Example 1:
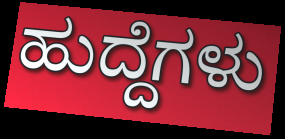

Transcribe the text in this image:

ಹುದ್ದೆಗಳು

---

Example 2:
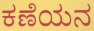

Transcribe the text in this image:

ಕಣೆಯನ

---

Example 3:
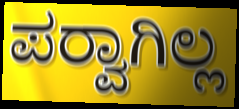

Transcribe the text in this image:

ಪರ‍್ವಾಗಿಲ್ಲ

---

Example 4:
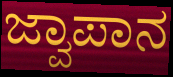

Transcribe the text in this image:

ಜ್ವಾಪಾನ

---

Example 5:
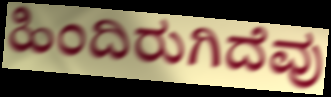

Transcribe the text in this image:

ಹಿಂದಿರುಗಿದೆವು